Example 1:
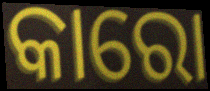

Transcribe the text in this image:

କାରୋ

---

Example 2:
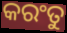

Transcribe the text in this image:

କରଂତୁ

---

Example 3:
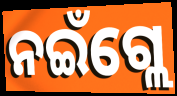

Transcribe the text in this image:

ନଇଁଗ୍ଲେ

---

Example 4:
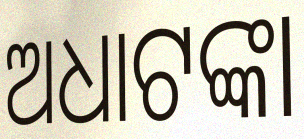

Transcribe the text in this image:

ଅଧାଟଙ୍କା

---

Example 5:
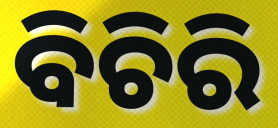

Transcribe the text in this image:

ବିଚିରି